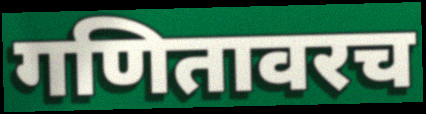
गणितावरच